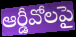
ఆర్డీవోలపై